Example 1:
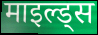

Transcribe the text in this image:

माइल्ड्स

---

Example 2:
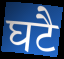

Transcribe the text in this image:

घटै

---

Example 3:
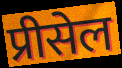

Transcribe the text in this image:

प्रीसेल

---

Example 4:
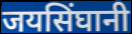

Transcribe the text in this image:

जयसिंघानी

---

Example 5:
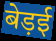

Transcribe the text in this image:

बेड़ई